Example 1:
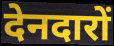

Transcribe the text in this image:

देनदारों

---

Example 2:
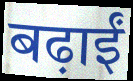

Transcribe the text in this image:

बढ़ाईं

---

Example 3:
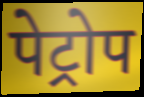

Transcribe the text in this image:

पेट्रोप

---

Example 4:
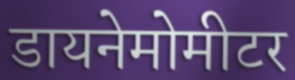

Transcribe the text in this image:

डायनेमोमीटर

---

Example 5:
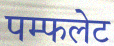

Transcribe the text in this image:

पम्फलेट